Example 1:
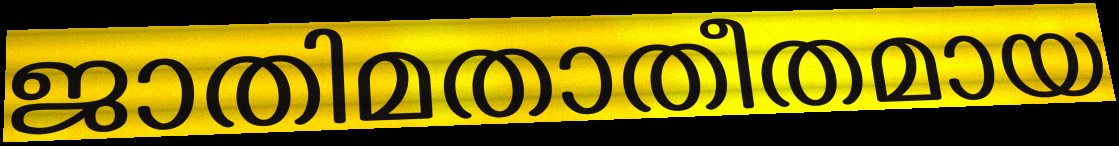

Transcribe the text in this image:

ജാതിമതാതീതമായ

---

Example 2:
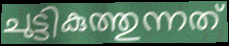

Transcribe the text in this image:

ചുട്ടികുത്തുന്നത്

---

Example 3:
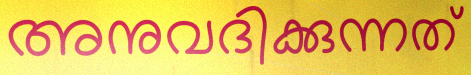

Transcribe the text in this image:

അനുവദിക്കുന്നത്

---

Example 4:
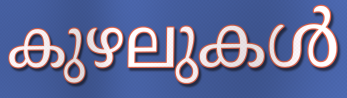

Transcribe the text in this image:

കുഴലുകൾ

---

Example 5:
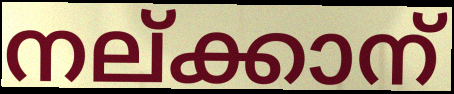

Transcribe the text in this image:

നല്ക്കാന്